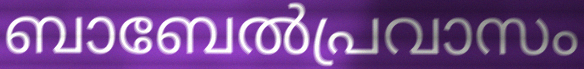
ബാബേൽപ്രവാസം